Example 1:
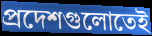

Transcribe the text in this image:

প্রদেশগুলোতেই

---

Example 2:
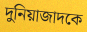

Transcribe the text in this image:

দুনিয়াজাদকে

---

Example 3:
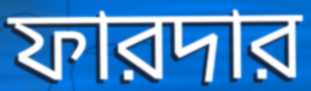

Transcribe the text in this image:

ফারদার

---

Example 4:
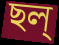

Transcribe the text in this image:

ছল্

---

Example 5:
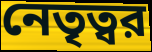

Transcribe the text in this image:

নেতৃত্বর